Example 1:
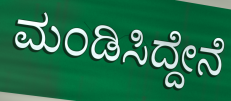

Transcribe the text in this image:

ಮಂಡಿಸಿದ್ದೇನೆ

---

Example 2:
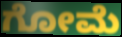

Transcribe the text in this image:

ಗೋಮೆ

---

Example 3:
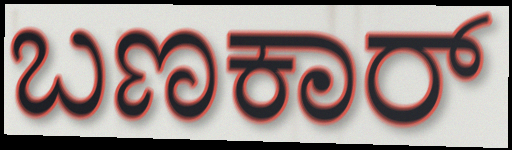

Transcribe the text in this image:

ಬಣಕಾರ್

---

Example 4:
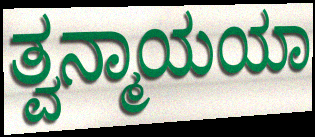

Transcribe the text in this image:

ತ್ವನ್ಮಾಯಯಾ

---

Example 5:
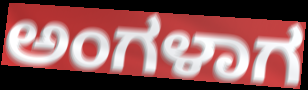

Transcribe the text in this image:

ಅಂಗಳಾಗ